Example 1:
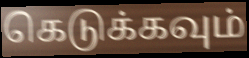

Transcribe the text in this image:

கெடுக்கவும்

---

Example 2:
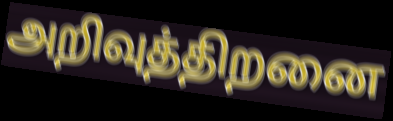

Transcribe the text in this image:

அறிவுத்திறனை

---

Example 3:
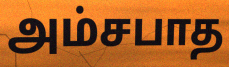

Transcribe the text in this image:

அம்சபாத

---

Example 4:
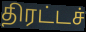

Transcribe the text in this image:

திரட்டச்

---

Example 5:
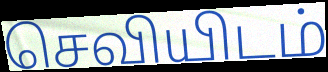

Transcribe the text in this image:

செவியிடம்